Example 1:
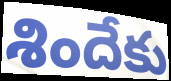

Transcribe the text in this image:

శిందేకు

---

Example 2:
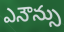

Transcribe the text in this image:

ఎనౌన్సు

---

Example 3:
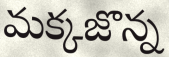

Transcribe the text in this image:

మక్కజొన్న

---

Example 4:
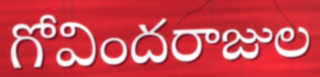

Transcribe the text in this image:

గోవిందరాజుల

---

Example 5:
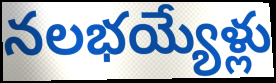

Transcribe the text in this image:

నలభయ్యేళ్లు